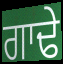
ਗਾਢੇ